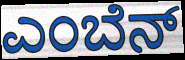
ಎಂಬೆನ್